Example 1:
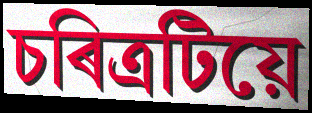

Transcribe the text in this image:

চৰিত্ৰটিয়ে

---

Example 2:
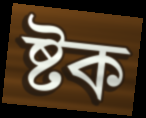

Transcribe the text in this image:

ষ্টক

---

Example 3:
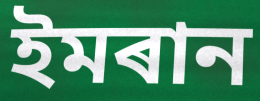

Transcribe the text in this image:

ইমৰান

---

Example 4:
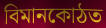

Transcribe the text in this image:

বিমানকোঠত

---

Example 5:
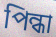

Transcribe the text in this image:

পিন্ধা